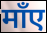
माँए